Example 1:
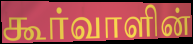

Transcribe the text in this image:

கூர்வாளின்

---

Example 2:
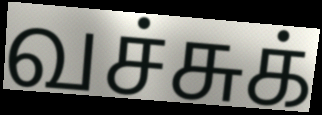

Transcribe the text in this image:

வச்சுக்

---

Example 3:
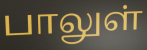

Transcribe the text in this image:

பாலுள்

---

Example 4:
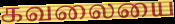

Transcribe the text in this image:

கவலையை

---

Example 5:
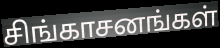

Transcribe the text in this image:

சிங்காசனங்கள்